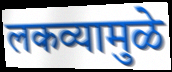
लकव्यामुळे